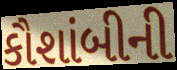
કૌશાંબીની